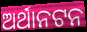
ଅର୍ଥାନଟନ